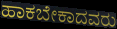
ಹಾಕಬೇಕಾದವರು